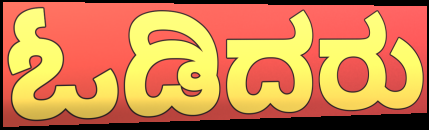
ಓಡಿದರು